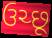
ઉચ્છૂ